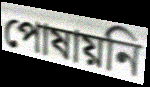
পোষায়নি